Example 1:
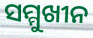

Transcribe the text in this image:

ସମ୍ମୁଖୀନ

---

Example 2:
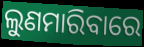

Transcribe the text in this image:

ଲୁଣମାରିବାରେ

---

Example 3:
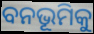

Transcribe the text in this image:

ବନଭୂମିକୁ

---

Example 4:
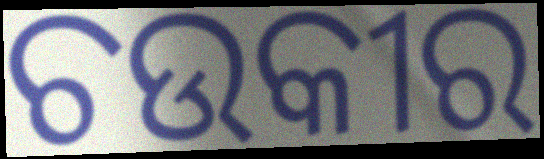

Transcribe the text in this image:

ଚଉକୀର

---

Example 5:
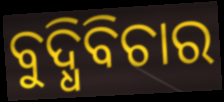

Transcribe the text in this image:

ବୁଦ୍ଧିବିଚାର